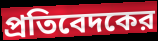
প্রতিবেদকের